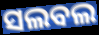
ସଲବଲ